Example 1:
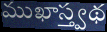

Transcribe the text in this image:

ముఖాస్త్వథ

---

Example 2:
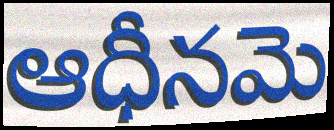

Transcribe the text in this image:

ఆధీనమె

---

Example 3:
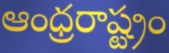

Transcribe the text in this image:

ఆంధ్రరాష్ట్రం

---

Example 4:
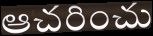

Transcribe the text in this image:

ఆచరించు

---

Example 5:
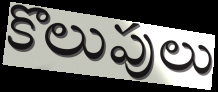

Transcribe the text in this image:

కొలుపులు